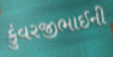
કુંવરજીભાઈની